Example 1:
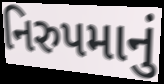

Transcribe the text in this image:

નિરુપમાનું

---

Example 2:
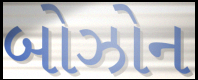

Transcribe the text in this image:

બોઝોન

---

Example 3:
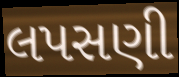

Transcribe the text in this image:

લપસણી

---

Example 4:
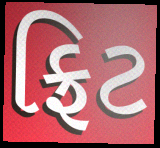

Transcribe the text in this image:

ફ્રિટ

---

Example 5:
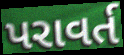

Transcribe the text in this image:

પરાવર્ત